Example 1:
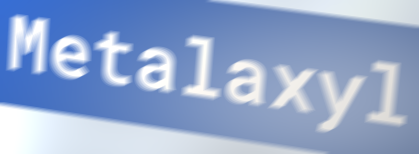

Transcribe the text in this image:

Metalaxyl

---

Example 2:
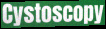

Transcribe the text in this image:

Cystoscopy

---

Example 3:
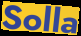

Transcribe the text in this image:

Solla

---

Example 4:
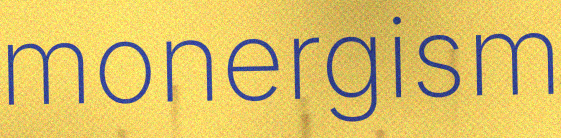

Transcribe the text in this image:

monergism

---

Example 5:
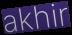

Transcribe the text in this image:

akhir